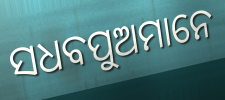
ସଧବପୁଅମାନେ